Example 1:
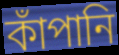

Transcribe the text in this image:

কাঁপানি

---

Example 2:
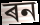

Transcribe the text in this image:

ৰন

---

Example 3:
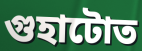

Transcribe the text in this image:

গুহাটোত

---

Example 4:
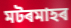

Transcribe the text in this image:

মটৰমাহৰ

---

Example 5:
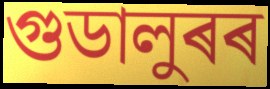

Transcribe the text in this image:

গুডালুৰৰ